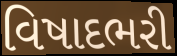
વિષાદભરી